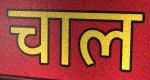
चाल